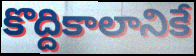
కొద్దికాలానికే